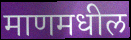
माणमधील